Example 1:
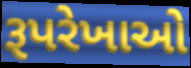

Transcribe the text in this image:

રૂપરેખાઓ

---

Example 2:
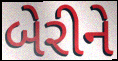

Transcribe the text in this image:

બેરીને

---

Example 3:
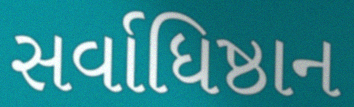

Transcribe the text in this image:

સર્વાધિષ્ઠાન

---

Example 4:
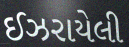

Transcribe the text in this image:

ઈઝરાયેલી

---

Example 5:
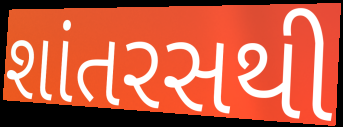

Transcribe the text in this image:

શાંતરસથી